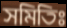
সমিতিঃ